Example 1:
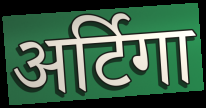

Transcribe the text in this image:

अर्टिगा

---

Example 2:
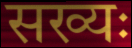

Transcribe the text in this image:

सख्यः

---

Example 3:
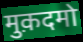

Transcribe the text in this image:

मुक़दमो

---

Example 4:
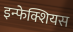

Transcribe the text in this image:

इन्फेक्शियस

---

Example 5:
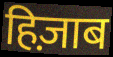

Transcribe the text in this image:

हिज़ाब